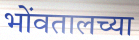
भोंवतालच्या